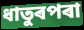
ধাতুৰপৰা